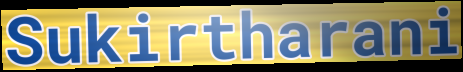
Sukirtharani